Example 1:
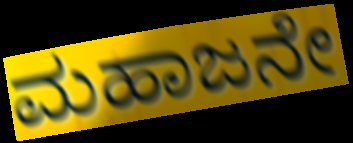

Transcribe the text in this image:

ಮಹಾಜನೇ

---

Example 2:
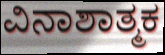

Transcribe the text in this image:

ವಿನಾಶಾತ್ಮಕ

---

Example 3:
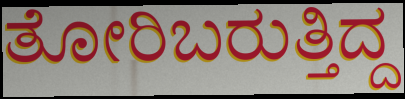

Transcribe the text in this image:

ತೋರಿಬರುತ್ತಿದ್ದ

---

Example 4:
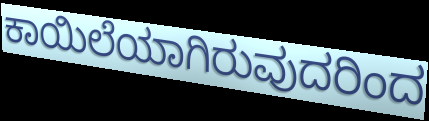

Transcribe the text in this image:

ಕಾಯಿಲೆಯಾಗಿರುವುದರಿಂದ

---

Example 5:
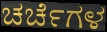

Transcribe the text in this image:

ಚರ್ಚೆಗಳ